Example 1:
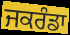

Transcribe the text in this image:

ਜਕਰੰਡਾ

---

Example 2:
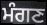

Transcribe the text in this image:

ਮੰਗਣ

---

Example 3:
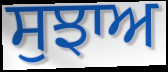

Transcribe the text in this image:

ਸੁਝਾਅ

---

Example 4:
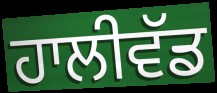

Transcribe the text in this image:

ਹਾਲੀਵੱਡ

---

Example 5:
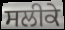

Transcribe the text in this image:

ਸਲੀਕੇ